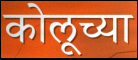
कोलूच्या